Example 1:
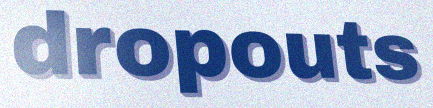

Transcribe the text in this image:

dropouts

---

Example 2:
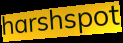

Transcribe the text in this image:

harshspot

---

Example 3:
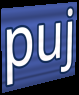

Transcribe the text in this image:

puj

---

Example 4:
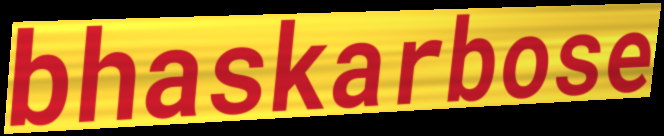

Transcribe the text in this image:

bhaskarbose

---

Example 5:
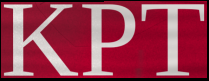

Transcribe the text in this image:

KPT